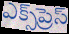
ఎక్స్‌ప్రెస్